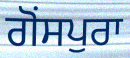
ਗੋਂਸਪੁਰਾ